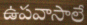
ఉపవాసాలే